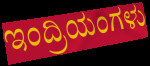
ಇಂದ್ರಿಯಂಗಳು